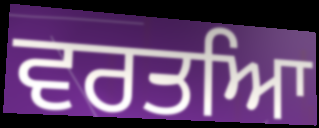
ਵਰਤਆਿ